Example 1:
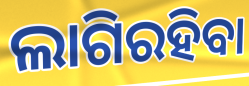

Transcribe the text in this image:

ଲାଗିରହିବା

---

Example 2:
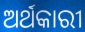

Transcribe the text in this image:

ଅର୍ଥକାରୀ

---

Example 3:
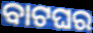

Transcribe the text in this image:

ବାଟଘର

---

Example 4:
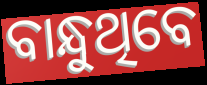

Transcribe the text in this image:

ବାନ୍ଧୁଥିବେ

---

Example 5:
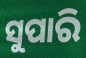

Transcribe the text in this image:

ସୁପାରି